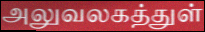
அலுவலகத்துள்